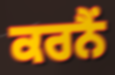
ਕਰਨੈਂ